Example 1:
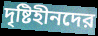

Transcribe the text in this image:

দৃষ্টিহীনদের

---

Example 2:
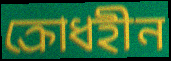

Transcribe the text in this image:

ক্রোধহীন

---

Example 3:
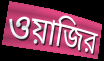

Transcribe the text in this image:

ওয়াজির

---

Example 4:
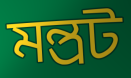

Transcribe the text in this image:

মন্ত্রট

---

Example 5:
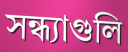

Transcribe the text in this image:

সন্ধ্যাগুলি